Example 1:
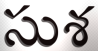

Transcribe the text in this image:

సుశ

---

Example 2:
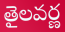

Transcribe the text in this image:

తైలవర్ణ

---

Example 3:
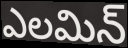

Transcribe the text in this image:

ఎలమిన్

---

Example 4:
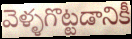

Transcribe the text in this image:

వెళ్ళగొట్టడానికీ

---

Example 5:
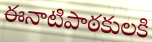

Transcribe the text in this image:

ఈనాటిపాఠకులకి